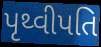
પૃથ્વીપતિ